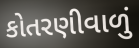
કોતરણીવાળું